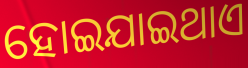
ହୋଇଯାଇଥାଏ